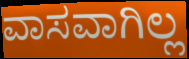
ವಾಸವಾಗಿಲ್ಲ